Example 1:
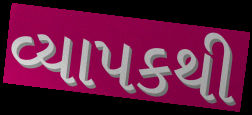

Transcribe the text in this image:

વ્યાપકથી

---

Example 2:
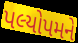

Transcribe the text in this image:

પલ્યોપમને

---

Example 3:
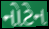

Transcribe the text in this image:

નોટેન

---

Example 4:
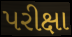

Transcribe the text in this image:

પરીક્ષા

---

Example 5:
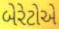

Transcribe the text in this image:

બેરેટોએ